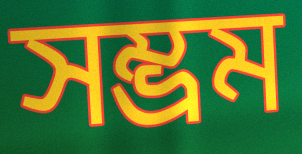
সম্ভ্রম